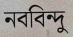
নববিন্দু